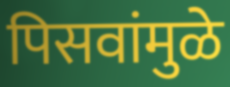
पिसवांमुळे